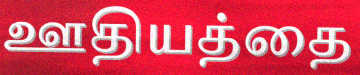
ஊதியத்தை